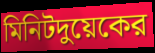
মিনিটদুয়েকের